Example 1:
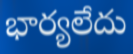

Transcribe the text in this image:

భార్యలేదు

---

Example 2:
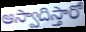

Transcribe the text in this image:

ఆస్వాదిస్తారో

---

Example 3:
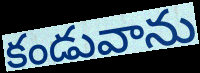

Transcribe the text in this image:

కండువాను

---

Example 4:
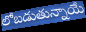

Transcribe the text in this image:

లోబడుతున్నాయే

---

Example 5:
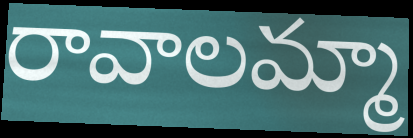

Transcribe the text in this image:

రావాలమ్మా